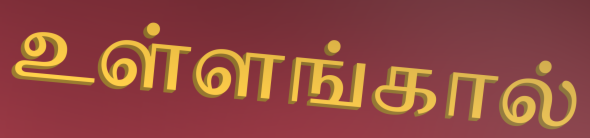
உள்ளங்கால்